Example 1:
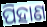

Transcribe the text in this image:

ପିହାଣ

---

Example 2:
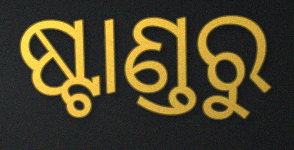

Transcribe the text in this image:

ଷ୍ଟାଣ୍ଡରୁ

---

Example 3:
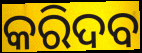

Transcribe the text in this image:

କରିଦବ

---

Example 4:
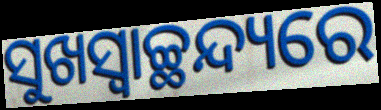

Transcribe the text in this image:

ସୁଖସ୍ଵାଚ୍ଛନ୍ଦ୍ୟରେ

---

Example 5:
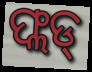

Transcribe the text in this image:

ଫ୍ଲଡ୍